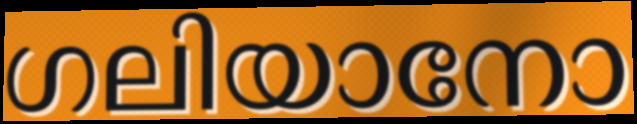
ഗലിയാനോ